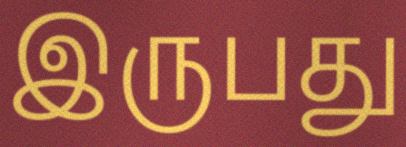
இருபது